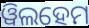
ୱିଲହେମ